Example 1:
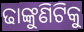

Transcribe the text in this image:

ଢାଙ୍କୁଣିଟିକୁ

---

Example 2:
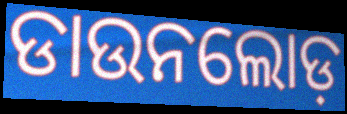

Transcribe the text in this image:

ଡାଉନଲୋଡ଼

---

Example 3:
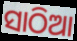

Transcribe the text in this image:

ସାଠିଆ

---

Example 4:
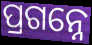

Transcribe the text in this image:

ପ୍ରଗନ୍ନେ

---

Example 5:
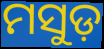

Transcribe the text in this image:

ମସୁଡ଼